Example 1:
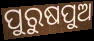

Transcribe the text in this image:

ପୁରୁଷପୁଅ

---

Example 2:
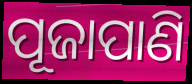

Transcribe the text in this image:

ପୂଜାପାଣି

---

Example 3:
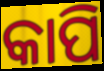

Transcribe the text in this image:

କାପି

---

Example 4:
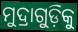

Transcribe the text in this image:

ମୁଦ୍ରାଗୁଡ଼ିକୁ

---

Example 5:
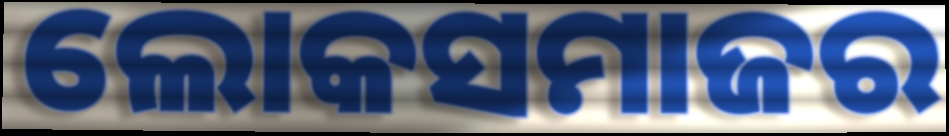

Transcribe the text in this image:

ଲୋକସମାଜର